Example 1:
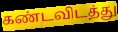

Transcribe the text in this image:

கண்டவிடத்து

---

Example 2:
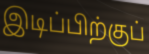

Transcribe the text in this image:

இடிப்பிற்குப்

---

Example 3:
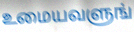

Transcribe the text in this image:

உமையவளுங்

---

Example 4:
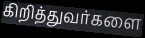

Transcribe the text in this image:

கிறித்துவர்களை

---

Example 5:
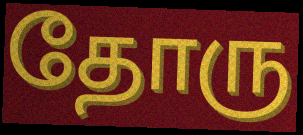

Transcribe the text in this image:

தோரு